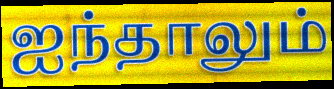
ஐந்தாலும்